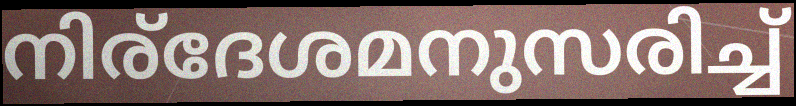
നിര്ദേശമനുസരിച്ച്